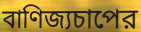
বাণিজ্যচাপের